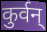
कुर्वन्